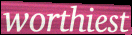
worthiest